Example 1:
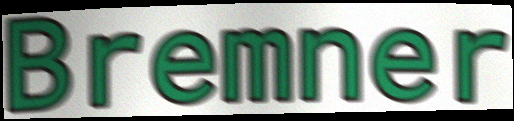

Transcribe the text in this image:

Bremner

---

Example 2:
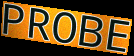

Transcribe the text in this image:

PROBE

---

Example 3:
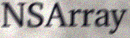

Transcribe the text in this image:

NSArray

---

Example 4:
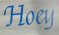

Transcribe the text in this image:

Hoey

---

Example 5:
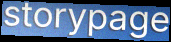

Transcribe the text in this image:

storypage